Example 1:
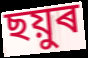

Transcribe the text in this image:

ছয়ুৰ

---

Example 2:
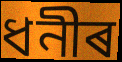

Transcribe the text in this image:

ধনীৰ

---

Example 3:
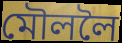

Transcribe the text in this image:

মৌললৈ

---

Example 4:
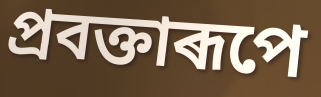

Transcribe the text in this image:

প্ৰবক্তাৰূপে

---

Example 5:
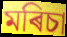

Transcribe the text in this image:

মৰিচা